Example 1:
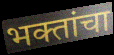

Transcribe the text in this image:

भक्तांचा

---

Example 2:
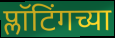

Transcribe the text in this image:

प्लॉटिंगच्या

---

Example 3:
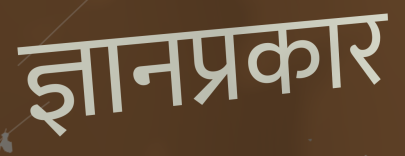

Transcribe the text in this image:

ज्ञानप्रकार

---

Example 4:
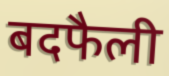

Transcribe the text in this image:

बदफैली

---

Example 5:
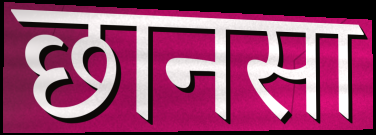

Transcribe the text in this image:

छानसा